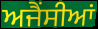
ਅਜੈਂਸੀਆਂ